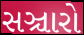
સઞ્ચારો